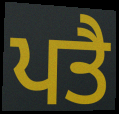
ਪਤੈ